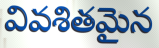
వివశితమైన